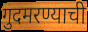
गुदमरण्याची